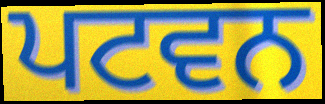
ਪਟਵਨ